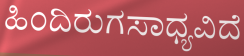
ಹಿಂದಿರುಗಸಾಧ್ಯವಿದೆ